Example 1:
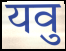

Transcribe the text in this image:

यवु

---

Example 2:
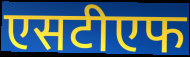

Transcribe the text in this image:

एसटीएफ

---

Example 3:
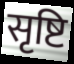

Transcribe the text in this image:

सृष्टि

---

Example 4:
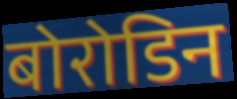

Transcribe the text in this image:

बोरोडिन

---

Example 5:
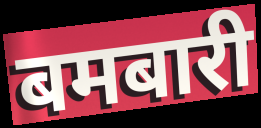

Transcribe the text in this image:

बमबारी